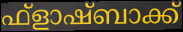
ഫ്ളാഷ്ബാക്ക്